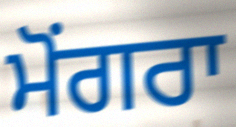
ਮੋਂਗਰਾ